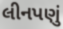
લીનપણું